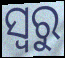
ସ୍ୱରୁ